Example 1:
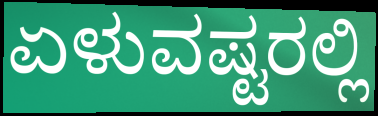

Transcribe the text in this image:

ಏಳುವಷ್ಟರಲ್ಲಿ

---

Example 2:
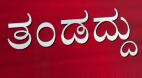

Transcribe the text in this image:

ತಂಡದ್ದು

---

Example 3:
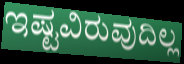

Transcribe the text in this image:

ಇಷ್ಟವಿರುವುದಿಲ್ಲ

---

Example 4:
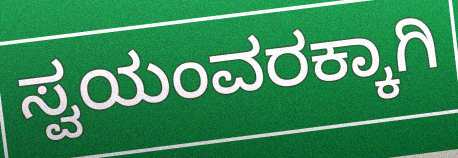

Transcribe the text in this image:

ಸ್ವಯಂವರಕ್ಕಾಗಿ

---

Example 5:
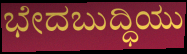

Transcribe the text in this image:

ಭೇದಬುದ್ಧಿಯು